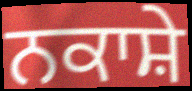
ਨਕਾਸ਼ੇ